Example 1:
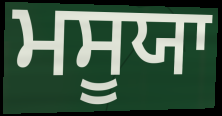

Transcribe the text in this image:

ਮਸੂਯਾ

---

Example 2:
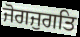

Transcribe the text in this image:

ਜੋਗਜੁਗਤਿ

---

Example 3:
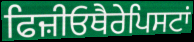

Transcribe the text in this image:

ਫਿਜ਼ੀਓਥੈਰੇਪਿਸਟਾਂ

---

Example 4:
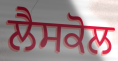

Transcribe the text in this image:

ਲੈਸਕੋਲ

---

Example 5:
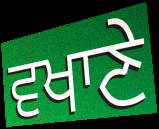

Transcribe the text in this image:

ਵਖਾਣੇ